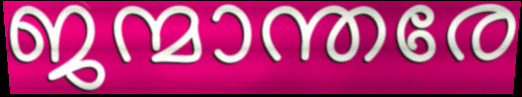
ജന്മാന്തരേ